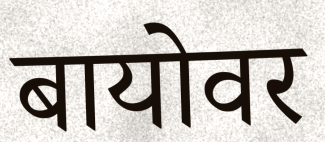
बायोवर